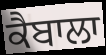
ਕੈਬਾਲਾ